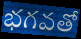
భగవతో